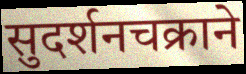
सुदर्शनचक्राने